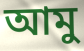
আমু